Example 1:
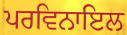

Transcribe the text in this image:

ਪਰਵਿਨਾਇਲ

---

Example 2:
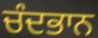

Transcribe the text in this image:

ਚੰਦਭਾਨ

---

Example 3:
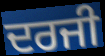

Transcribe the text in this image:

ਦਰਜੀ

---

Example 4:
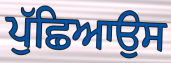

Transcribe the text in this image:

ਪੁੱਛਿਆਉਸ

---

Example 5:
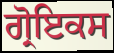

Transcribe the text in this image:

ਗ੍ਰੋਇਕਸ